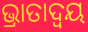
ଭ୍ରାତାଦ୍ୱୟ